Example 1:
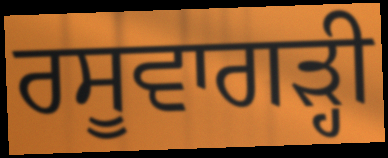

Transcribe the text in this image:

ਰਸੂਵਾਗੜ੍ਹੀ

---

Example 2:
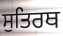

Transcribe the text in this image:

ਸੁਤਿਰਥ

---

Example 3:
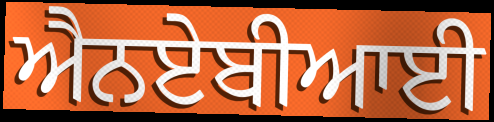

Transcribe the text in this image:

ਐਨਏਬੀਆਈ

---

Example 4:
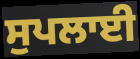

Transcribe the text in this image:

ਸੁਪਲਾਈ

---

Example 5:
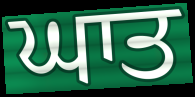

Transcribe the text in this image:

ਘਾਤ